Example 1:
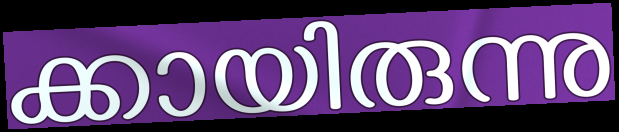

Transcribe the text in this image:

ക്കായിരുന്നു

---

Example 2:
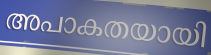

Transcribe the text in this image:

അപാകതയായി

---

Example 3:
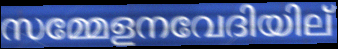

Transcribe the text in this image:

സമ്മേളനവേദിയില്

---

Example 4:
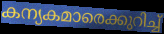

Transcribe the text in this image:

കന്യകമാരെക്കുറിച്ച്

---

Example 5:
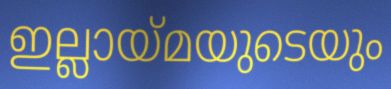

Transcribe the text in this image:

ഇല്ലായ്മയുടെയും